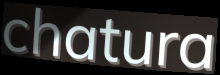
chatura